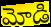
మోడి